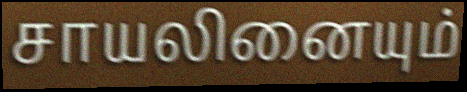
சாயலினையும்